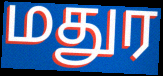
மதுர